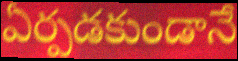
ఏర్పడకుండానే